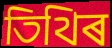
তিথিৰ